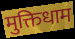
मुक्तिधाम